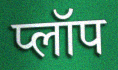
प्लॉप